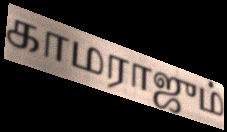
காமராஜும்